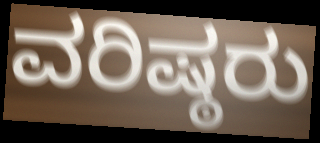
ವರಿಷ್ಠರು